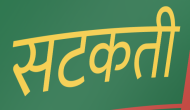
सटकती